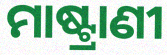
ମାଷ୍ଟ୍ରାଣୀ